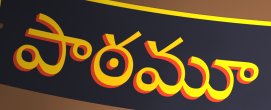
పాఠమూ